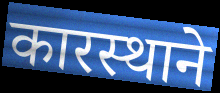
कारस्थाने